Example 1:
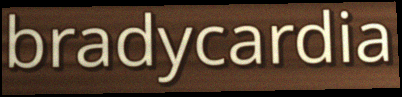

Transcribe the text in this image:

bradycardia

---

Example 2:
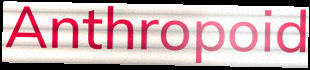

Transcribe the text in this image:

Anthropoid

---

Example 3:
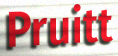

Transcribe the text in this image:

Pruitt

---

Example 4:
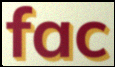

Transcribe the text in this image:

fac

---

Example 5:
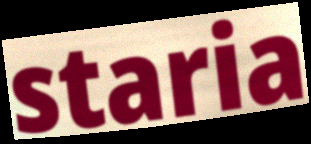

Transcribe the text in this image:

staria